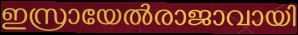
ഇസ്രായേൽരാജാവായി